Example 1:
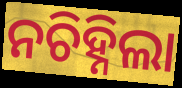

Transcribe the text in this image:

ନଚିହ୍ନିଲା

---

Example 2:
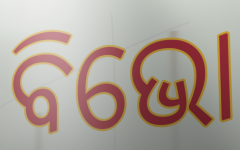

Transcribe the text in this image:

ବିଭୋ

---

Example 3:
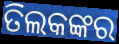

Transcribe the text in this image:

ତିଲକଙ୍କର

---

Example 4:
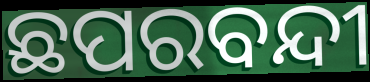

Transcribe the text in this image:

ଛପରବନ୍ଦୀ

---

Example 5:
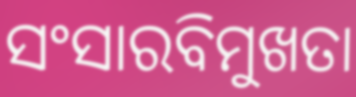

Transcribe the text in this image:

ସଂସାରବିମୁଖତା